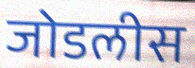
जोडलीस